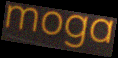
moga